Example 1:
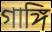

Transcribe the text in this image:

গাঙ্গি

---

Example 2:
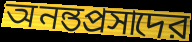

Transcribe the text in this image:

অনন্তপ্রসাদের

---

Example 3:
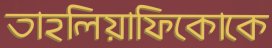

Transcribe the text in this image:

তাহলিয়াফিকোকে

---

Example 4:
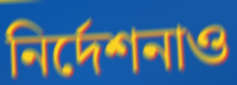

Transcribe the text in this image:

নির্দেশনাও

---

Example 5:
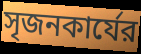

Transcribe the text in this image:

সৃজনকার্যের